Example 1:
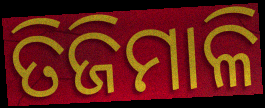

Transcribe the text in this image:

ତିଜିମାଳି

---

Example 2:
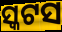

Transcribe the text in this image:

ସ୍କଟସ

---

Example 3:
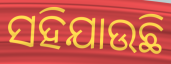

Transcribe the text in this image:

ସହିଯାଉଛି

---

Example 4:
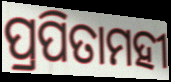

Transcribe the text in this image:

ପ୍ରପିତାମହୀ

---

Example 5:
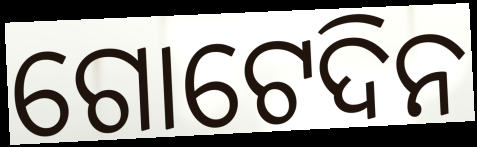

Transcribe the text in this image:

ଗୋଟେଦିନ